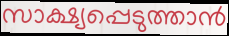
സാക്ഷ്യപ്പെടുത്താൻ